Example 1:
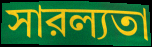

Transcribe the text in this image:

সারল্যতা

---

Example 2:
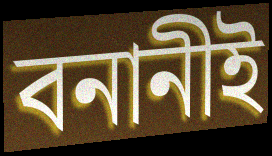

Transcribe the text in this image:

বনানীই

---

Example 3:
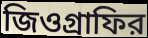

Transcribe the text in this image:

জিওগ্রাফির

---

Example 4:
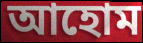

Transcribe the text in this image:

আহোম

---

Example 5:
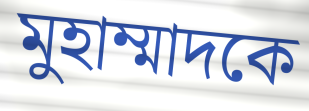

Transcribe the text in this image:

মুহাম্মাদকে